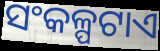
ସଂକଳ୍ପଟାଏ